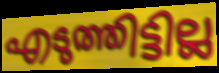
എടുത്തിട്ടില്ല